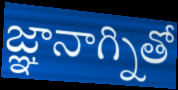
జ్ఞానాగ్నితో